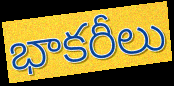
భాకరీలు